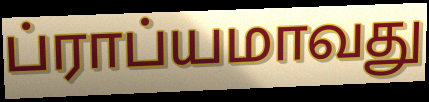
ப்ராப்யமாவது